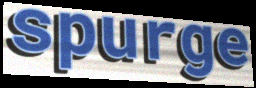
spurge